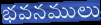
భవనములు